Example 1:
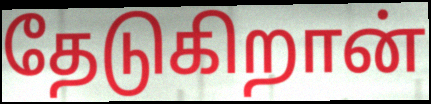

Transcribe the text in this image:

தேடுகிறான்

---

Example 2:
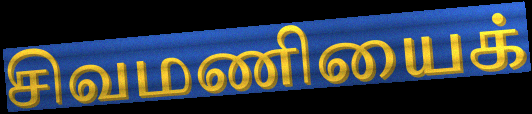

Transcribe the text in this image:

சிவமணியைக்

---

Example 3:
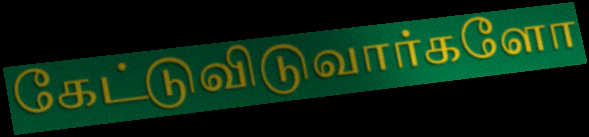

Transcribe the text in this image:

கேட்டுவிடுவார்களோ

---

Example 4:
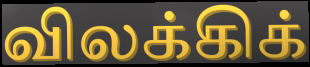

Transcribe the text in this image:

விலக்கிக்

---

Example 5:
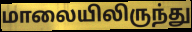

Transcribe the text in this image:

மாலையிலிருந்து